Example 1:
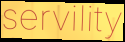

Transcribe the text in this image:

servility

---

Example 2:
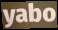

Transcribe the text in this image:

yabo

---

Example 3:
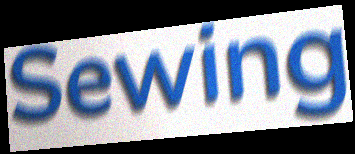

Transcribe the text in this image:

Sewing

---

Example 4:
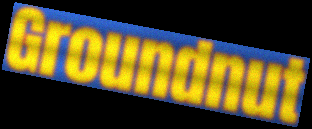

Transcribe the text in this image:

Groundnut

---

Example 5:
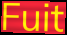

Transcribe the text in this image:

Fuit